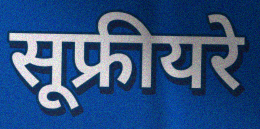
सूफ्रीयरे